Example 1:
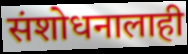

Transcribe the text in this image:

संशोधनालाही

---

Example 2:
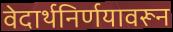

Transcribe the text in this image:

वेदार्थनिर्णयावरून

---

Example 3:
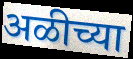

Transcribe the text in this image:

अळीच्या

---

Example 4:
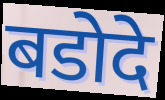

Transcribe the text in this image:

बडोदे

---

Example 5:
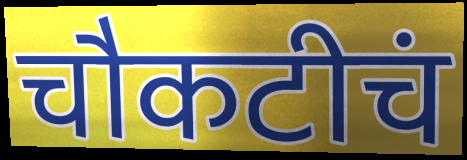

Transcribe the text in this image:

चौकटीचं